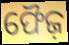
ଫୈଜ଼